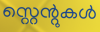
സ്റ്റെന്റുകൾ